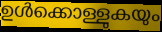
ഉൾക്കൊള്ളുകയും